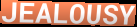
JEALOUSY